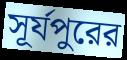
সূর্যপুরের